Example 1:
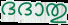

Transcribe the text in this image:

ദദാതു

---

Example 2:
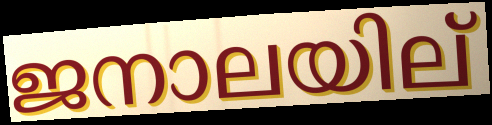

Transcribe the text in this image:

ജനാലയില്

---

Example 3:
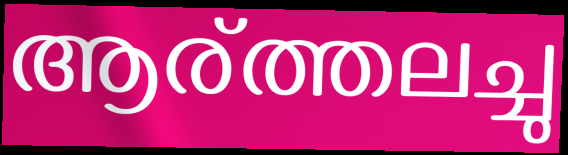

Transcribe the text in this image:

ആര്ത്തലച്ചു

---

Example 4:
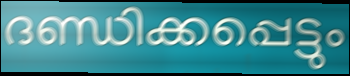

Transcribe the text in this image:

ദണ്ഡിക്കപ്പെട്ടും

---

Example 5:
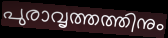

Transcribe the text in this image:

പുരാവൃത്തത്തിനും